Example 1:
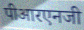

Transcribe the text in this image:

पीआरएनजी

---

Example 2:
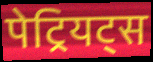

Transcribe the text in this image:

पेट्रियट्स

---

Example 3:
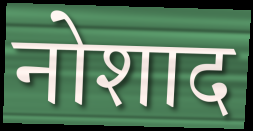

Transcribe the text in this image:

नोशाद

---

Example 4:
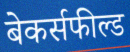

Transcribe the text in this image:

बेकर्सफील्ड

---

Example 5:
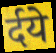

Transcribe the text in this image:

र्दये